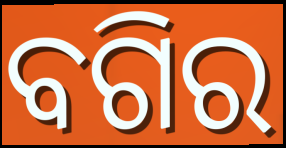
ବଗିର